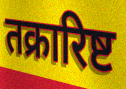
तक्रारिष्ट